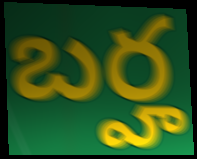
బర్హ